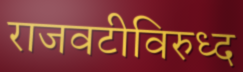
राजवटीविरुध्द